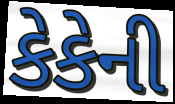
કેકેની